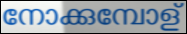
നോക്കുമ്പോള്